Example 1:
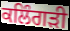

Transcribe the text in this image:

ਕਲਿੰਗੜੀ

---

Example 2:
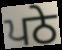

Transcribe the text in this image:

ਪਠੇ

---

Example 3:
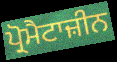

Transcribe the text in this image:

ਪ੍ਰੋਮੈਟਾਜ਼ੀਨ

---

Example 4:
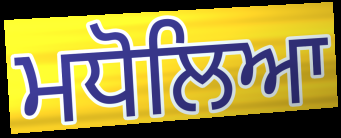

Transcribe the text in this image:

ਮਧੋਲਿਆ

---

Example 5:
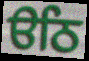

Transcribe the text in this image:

ੳਠਿ